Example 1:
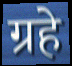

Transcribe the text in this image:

ग्रहे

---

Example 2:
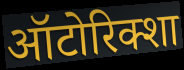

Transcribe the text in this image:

ऑटोरिक्शा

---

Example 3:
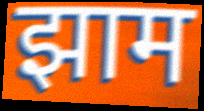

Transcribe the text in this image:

झाम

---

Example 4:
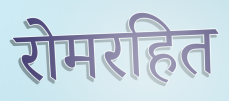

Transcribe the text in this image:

रोमरहित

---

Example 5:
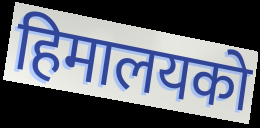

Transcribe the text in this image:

हिमालयको